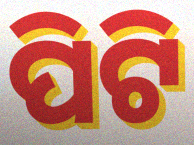
ପିଟି